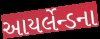
આયર્લેન્ડના